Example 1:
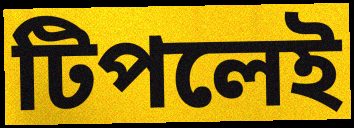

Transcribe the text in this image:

টিপলেই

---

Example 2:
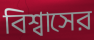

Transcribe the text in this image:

বিশ্বাসের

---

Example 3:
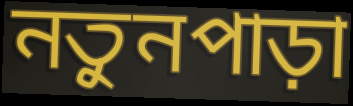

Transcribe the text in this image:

নতুনপাড়া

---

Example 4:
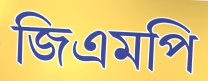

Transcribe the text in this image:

জিএমপি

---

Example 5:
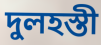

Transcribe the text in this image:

দুলহস্তী